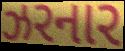
ઝરનાર